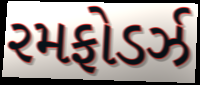
રમફોડર્ઝ